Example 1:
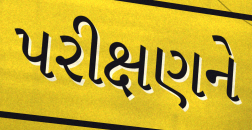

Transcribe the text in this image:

પરીક્ષણને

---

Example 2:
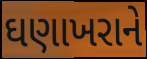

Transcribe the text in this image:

ઘણાખરાને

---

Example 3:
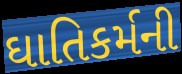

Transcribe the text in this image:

ઘાતિકર્મની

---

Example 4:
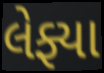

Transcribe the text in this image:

લેફ્યા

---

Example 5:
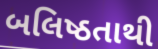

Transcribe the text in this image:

બલિષ્ઠતાથી